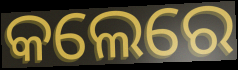
କଲେରେ